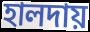
হালদায়